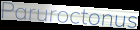
Paruroctonus